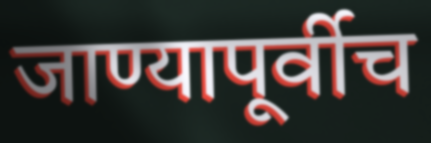
जाण्यापूर्वीच